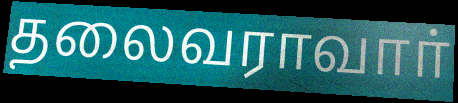
தலைவராவார்